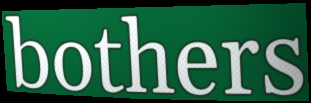
bothers